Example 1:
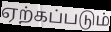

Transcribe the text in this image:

ஏற்கப்படும்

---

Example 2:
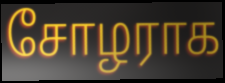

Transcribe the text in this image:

சோழராக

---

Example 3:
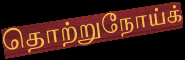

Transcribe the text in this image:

தொற்றுநோய்க்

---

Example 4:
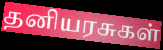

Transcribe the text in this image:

தனியரசுகள்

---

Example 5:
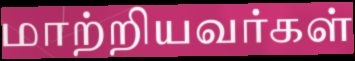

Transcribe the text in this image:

மாற்றியவர்கள்